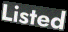
Listed